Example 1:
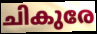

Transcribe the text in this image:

ചികുരേ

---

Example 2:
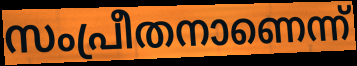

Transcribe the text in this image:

സംപ്രീതനാണെന്ന്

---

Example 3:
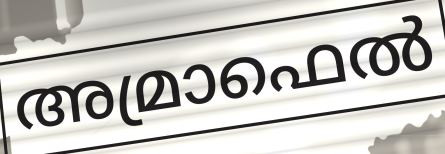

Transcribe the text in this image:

അമ്രാഫെൽ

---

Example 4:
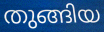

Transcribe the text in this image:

തുങ്ങിയ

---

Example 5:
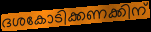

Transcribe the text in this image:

ദശകോടിക്കണക്കിന്